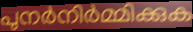
പുനർനിർമ്മിക്കുക